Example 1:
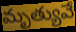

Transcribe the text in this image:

మృత్యువే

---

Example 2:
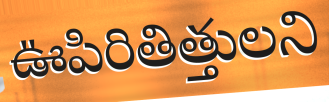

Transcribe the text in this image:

ఊపిరితిత్తులని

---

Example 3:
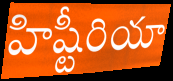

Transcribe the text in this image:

హిష్టీరియా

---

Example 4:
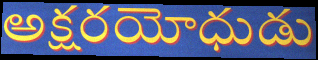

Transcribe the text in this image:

అక్షరయోధుడు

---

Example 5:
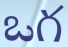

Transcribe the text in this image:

ఒగ